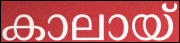
കാലായ്